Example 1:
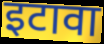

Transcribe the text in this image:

इटावा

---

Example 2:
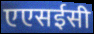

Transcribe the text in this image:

एएसईसी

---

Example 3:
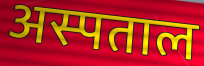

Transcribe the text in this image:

अस्पताल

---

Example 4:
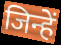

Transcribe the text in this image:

जिन्हें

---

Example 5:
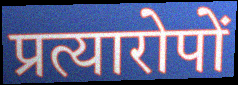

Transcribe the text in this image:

प्रत्यारोपों